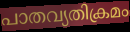
പാതവ്യതിക്രമം